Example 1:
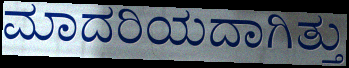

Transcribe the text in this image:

ಮಾದರಿಯದಾಗಿತ್ತು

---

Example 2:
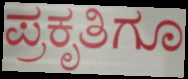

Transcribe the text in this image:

ಪ್ರಕೃತಿಗೂ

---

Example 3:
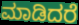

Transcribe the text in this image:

ಮಾಡಿದರೆ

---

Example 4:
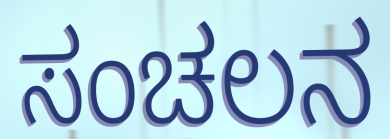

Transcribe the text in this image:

ಸಂಚಲನ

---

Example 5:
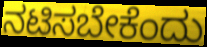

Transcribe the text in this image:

ನಟಿಸಬೇಕೆಂದು